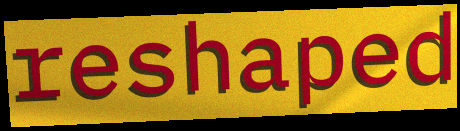
reshaped